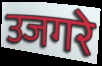
उजगरे